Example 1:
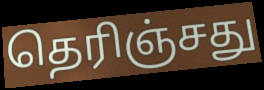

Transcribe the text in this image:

தெரிஞ்சது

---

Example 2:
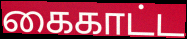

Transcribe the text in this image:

கைகாட்ட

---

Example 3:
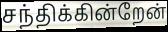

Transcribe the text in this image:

சந்திக்கின்றேன்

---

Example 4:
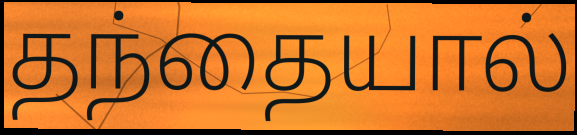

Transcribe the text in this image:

தந்தையால்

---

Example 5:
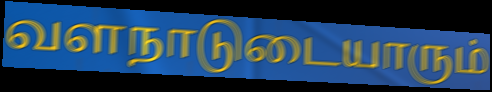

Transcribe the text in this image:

வளநாடுடையாரும்